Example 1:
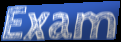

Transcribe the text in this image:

Exam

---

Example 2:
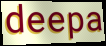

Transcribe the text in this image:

deepa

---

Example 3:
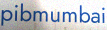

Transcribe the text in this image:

pibmumbai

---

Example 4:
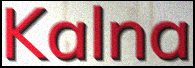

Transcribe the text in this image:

Kalna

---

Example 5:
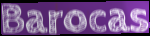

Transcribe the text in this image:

Barocas